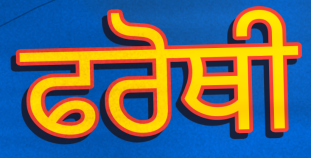
ਫਰੋਥੀ